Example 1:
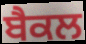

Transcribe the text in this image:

ਬੈਕਲ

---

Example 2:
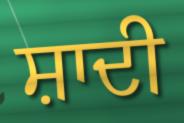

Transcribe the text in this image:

ਸ਼ਾਦੀ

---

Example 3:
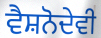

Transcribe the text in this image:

ਵੈਸ਼ਨੋਦੇਵੀ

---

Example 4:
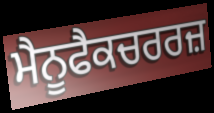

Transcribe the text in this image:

ਮੈਨੂਫੈਕਚਰਰਜ਼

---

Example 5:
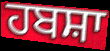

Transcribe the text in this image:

ਹਬਸ਼ਾ